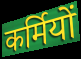
कर्मियों